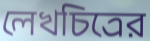
লেখচিত্রের